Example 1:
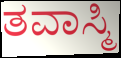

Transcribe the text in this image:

ತವಾಸ್ಮಿ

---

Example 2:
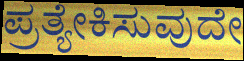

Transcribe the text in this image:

ಪ್ರತ್ಯೇಕಿಸುವುದೇ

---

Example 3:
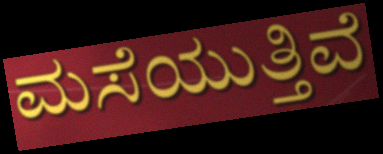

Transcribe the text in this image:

ಮಸೆಯುತ್ತಿವೆ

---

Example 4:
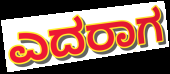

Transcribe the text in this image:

ಎದರಾಗ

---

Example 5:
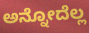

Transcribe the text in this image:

ಅನ್ನೋದೆಲ್ಲ